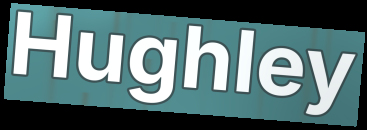
Hughley